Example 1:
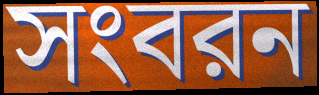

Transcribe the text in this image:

সংবরন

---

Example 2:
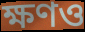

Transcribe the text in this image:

ক্ষণও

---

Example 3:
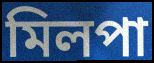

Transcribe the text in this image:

মিলপা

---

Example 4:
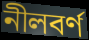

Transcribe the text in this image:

নীলবর্ণ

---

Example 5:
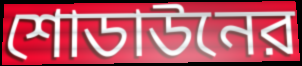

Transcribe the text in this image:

শোডাউনের